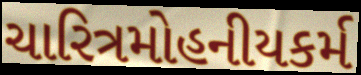
ચારિત્રમોહનીયકર્મ